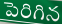
పెరిగిన